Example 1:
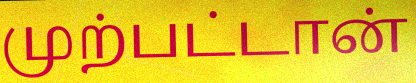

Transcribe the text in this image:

முற்பட்டான்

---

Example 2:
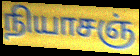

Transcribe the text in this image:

நியாசஞ்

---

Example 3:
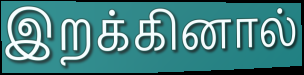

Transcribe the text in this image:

இறக்கினால்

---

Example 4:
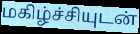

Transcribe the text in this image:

மகிழ்ச்சியுடன்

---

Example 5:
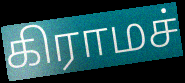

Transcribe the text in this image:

கிராமச்